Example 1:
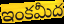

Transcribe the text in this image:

ఇంకమీద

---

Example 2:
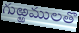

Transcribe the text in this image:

గుఱ్ఱములతొ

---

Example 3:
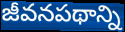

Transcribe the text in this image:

జీవనపథాన్ని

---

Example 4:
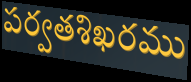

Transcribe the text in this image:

పర్వతశిఖరము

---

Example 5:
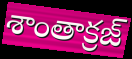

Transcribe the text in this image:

శాంతాక్రజ్